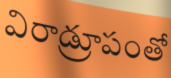
విరాడ్రూపంతో